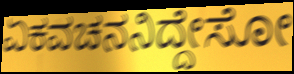
ಏಕವಚನನಿದ್ದೇಸೋ